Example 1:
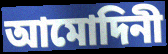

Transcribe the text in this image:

আমোদিনী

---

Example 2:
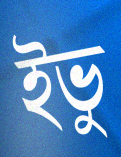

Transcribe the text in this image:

ইভু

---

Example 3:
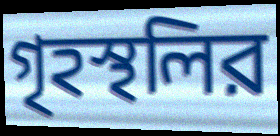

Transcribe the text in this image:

গৃহস্থলির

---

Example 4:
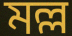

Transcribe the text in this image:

মল্ল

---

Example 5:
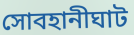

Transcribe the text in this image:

সোবহানীঘাট